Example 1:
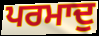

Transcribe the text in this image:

ਪਰਮਾਦੁ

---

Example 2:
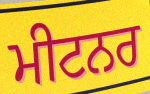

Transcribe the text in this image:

ਮੀਟਨਰ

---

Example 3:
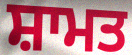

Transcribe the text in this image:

ਸ਼ਾਮਤ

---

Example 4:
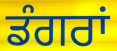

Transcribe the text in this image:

ਡੰਗਰਾਂ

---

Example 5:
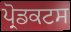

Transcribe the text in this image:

ਪ੍ਰੋਡਕਟਸ